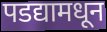
पडद्यामधून